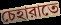
চেহারাতে